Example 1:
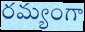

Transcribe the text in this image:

రమ్యంగా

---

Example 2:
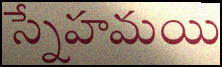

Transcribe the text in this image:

స్నేహమయి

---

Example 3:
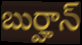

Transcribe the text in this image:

బుర్హాన్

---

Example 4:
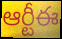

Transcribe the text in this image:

ఆర్టీఈ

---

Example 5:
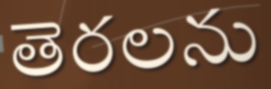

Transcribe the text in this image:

తెరలను